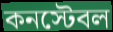
কনস্টেবল